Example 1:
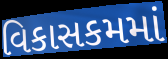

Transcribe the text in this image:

વિકાસકમમાં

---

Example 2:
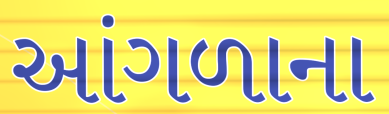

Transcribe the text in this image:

આંગળાના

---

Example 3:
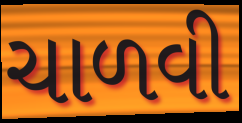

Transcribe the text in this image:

ચાળવી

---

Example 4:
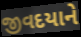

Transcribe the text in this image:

જીવદયાને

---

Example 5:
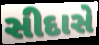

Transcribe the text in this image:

સીદાસે